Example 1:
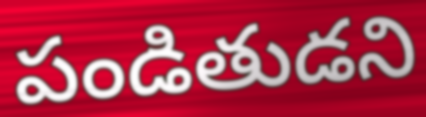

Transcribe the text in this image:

పండితుడని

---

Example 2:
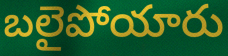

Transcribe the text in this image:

బలైపోయారు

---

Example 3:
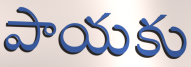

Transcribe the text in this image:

పాయకు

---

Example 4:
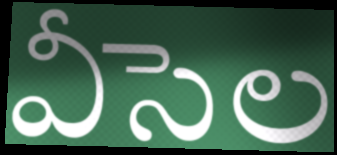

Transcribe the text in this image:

వీసెల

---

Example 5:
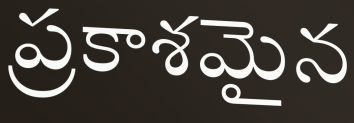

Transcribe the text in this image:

ప్రకాశమైన